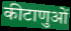
कीटाणुओं